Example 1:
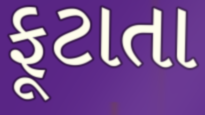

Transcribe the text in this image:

ફૂટાતા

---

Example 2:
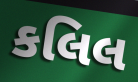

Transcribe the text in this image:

કલિલ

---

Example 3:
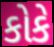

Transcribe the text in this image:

કોકે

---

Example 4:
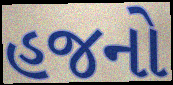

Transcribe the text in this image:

હજનો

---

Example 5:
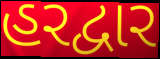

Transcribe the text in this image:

હરદ્વાર